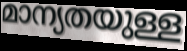
മാന്യതയുള്ള